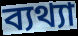
ব্যথ্যা